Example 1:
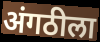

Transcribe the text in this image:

अंगठीला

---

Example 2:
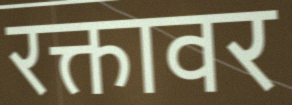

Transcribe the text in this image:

रक्तावर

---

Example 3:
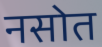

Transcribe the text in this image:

नसोत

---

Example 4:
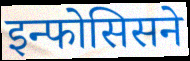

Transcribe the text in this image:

इन्फोसिसने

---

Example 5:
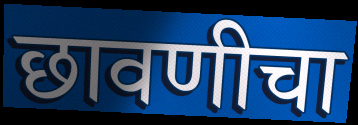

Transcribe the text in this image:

छावणीचा